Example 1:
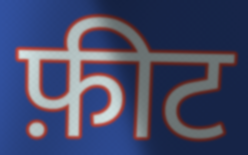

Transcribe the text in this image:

फ़ीट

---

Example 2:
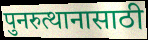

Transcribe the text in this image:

पुनरुत्थानासाठी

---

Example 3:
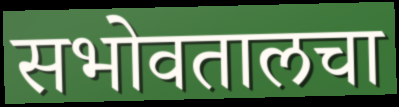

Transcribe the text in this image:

सभोवतालचा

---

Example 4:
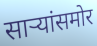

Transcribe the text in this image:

साऱ्यांसमोर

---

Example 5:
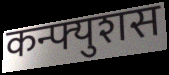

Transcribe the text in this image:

कन्फ्युशस